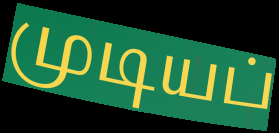
முடியப்